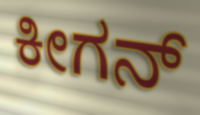
ಕೀಗನ್